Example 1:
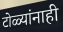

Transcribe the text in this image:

टोळ्यांनाही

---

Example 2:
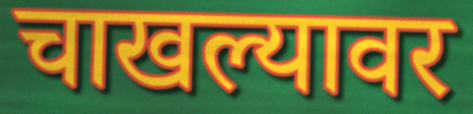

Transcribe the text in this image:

चाखल्यावर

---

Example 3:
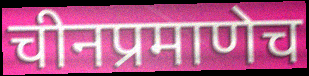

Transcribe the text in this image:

चीनप्रमाणेच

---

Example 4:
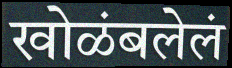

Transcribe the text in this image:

खोळंबलेलं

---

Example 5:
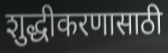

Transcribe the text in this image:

शुद्धीकरणासाठी